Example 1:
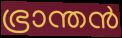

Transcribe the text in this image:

ഭ്രാന്തൻ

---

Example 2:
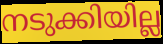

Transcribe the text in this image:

നടുക്കിയില്ല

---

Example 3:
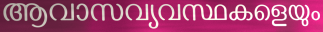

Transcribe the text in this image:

ആവാസവ്യവസ്ഥകളെയും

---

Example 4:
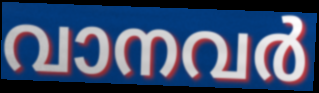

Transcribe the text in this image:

വാനവർ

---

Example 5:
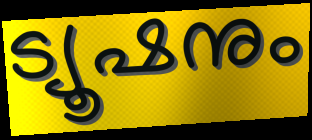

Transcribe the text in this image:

ട്യൂഷനും